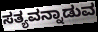
ಸತ್ಯವನ್ನಾಡುವ